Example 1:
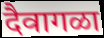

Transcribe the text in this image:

दैवागळा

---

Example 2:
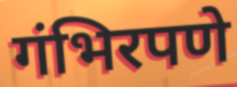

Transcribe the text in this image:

गंभिरपणे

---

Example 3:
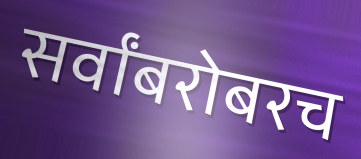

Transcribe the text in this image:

सर्वांबरोबरच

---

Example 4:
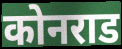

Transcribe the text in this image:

कोनराड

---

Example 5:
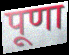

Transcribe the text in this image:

पूणा